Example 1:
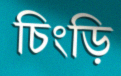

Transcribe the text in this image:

চিংড়ি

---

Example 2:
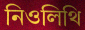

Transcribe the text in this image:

নিওলিথি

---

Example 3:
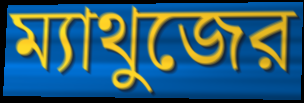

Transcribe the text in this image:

ম্যাথুজের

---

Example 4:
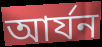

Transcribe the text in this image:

আর্যন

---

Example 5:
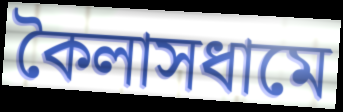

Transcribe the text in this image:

কৈলাসধামে